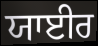
ਯਾਈਰ